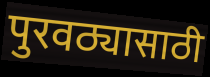
पुरवठ्यासाठी